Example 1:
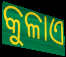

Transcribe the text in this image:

କୁଳାଏ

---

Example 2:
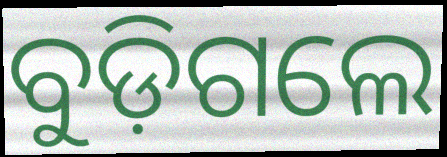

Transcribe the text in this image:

ବୁଡ଼ିଗଲେ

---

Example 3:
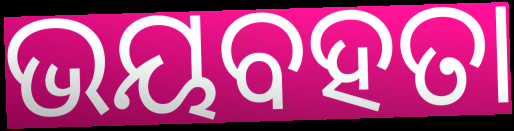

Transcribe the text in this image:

ଭୟବହତା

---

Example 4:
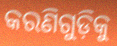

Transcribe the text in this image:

କରଣିଗୁଡ଼ିକୁ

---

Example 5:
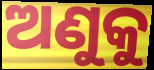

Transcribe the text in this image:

ଅଣୁକୁ